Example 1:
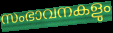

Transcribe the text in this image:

സംഭാവനകളും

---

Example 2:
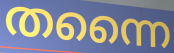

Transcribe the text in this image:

തന്നൈ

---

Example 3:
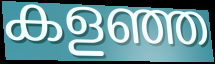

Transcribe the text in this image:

കളഞ്ഞ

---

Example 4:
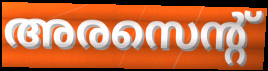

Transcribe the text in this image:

അരസെന്റ്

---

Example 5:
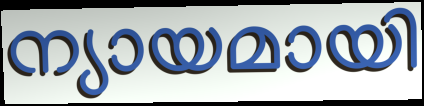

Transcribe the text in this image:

ന്യായമായി